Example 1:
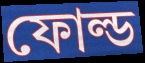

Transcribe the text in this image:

ফোল্ড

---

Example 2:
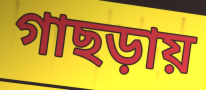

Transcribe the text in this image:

গাছড়ায়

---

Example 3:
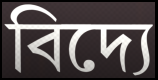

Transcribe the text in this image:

বিদ্যে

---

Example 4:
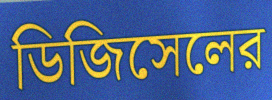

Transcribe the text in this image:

ডিজিসেলের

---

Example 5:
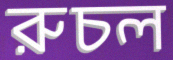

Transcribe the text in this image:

রুচল